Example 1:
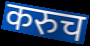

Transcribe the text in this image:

करुच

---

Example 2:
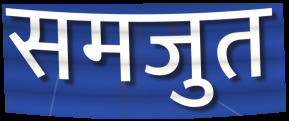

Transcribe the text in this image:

समजुत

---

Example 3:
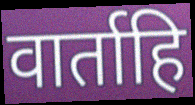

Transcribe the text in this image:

वार्ताहि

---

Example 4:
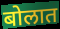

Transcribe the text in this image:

बोलात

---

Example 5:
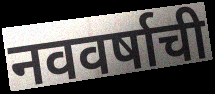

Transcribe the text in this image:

नववर्षाची